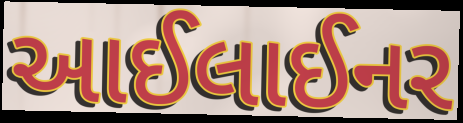
આઈલાઈનર